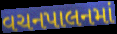
વચનપાલનમાં